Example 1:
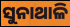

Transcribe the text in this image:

ସୁନାଥାଳି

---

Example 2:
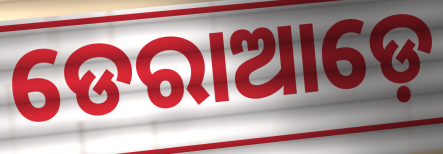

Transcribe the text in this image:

ଡେରାଆଡ଼େ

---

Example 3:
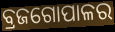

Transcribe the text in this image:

ବ୍ରଜଗୋପାଳର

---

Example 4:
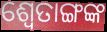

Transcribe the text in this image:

ଶ୍ବେତାଙ୍ଗଙ୍କ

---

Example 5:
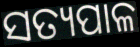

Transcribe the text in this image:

ସତ୍ୟପାଳ